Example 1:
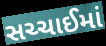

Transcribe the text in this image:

સચ્ચાઈમાં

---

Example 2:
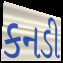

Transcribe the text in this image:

કનડી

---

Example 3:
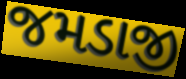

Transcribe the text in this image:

જમડાજી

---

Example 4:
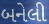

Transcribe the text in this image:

બનેલી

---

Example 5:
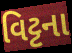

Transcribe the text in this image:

વિટ્ટના